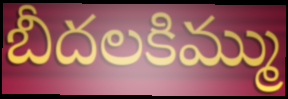
బీదలకిమ్ము